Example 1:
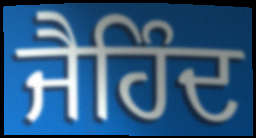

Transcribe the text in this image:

ਜੈਹਿੰਦ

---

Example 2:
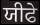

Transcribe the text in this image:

ਯੀਫੇ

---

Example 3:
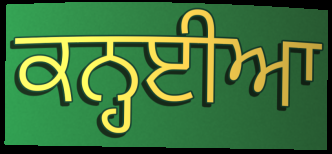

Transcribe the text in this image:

ਕਨ੍ਹਈਆ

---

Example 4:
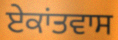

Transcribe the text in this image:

ਏਕਾਂਤਵਾਸ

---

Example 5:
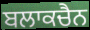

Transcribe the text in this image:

ਬਲਾਕਚੈਨ